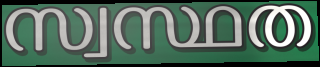
സ്വസ്ഥത